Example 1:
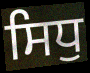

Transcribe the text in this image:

ਸਿਧੁ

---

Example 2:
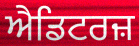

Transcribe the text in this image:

ਐਡਿਟਰਜ਼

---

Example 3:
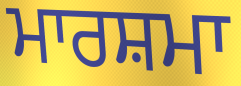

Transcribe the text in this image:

ਮਾਰਸ਼ਮਾ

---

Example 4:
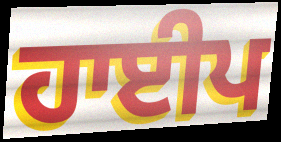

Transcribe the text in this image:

ਹਾਈਪ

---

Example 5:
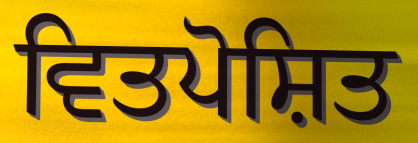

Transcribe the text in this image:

ਵਿਤਪੋਸ਼ਿਤ